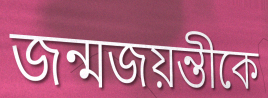
জন্মজয়ন্তীকে